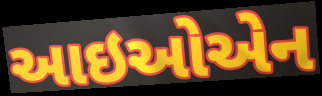
આઇઓએન